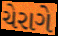
ચેરાગે